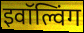
इवॉल्विंग